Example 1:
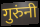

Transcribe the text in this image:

गुरुंनी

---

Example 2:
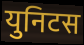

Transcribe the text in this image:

युनिटस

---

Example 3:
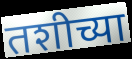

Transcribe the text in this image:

तशीच्या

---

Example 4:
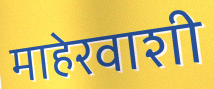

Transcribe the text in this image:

माहेरवाशी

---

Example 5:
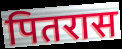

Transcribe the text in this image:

पितरास